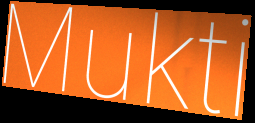
Mukti